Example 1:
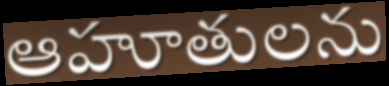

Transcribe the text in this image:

ఆహూతులను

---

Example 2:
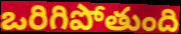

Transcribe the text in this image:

ఒరిగిపోతుంది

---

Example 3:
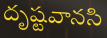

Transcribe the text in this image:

దృష్టవానసి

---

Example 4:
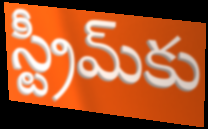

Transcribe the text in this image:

స్ట్రీమ్‌కు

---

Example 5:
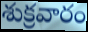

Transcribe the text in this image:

శుక్రవారం